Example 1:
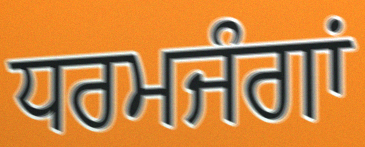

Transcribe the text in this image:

ਧਰਮਜੰਗਾਂ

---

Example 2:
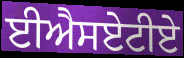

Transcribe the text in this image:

ਈਐਸਏਟੀਏ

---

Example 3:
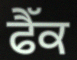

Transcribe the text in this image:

ਫੈੱਕ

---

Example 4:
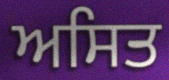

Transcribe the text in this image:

ਅਸਿਤ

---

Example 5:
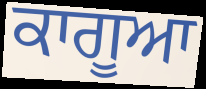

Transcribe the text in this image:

ਕਾਗੂਆ